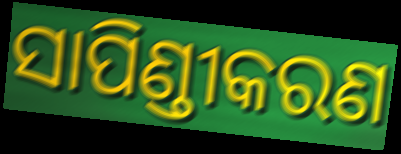
ସାପିଣ୍ଡୀକରଣ